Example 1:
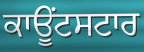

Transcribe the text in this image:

ਕਾਊਂਟਸਟਾਰ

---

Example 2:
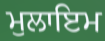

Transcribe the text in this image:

ਮੁਲਾਇਮ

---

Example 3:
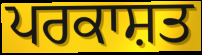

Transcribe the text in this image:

ਪਰਕਾਸ਼ਤ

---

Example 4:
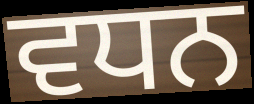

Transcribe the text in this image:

ਵਧਨ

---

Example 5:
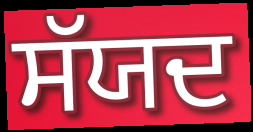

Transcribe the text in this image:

ਸੱਯਦ